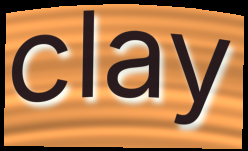
clay